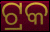
ଟ୍ରକ